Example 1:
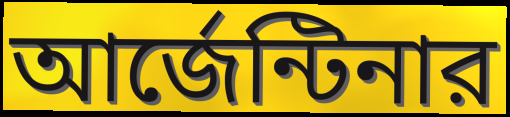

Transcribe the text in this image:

আর্জেন্টিনার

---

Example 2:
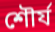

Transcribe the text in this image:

শৌর্য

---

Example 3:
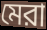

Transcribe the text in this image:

মেরা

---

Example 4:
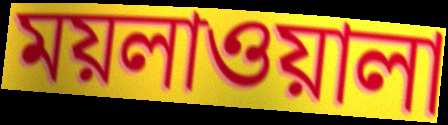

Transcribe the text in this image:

ময়লাওয়ালা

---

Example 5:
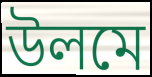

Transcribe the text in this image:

উলমে